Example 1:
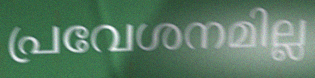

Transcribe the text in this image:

പ്രവേശനമില്ല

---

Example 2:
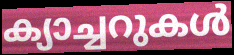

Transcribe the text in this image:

ക്യാച്ചറുകൾ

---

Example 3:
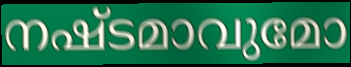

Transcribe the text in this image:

നഷ്ടമാവുമോ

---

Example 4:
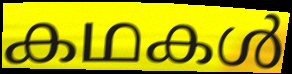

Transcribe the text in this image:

കഥകൾ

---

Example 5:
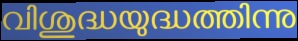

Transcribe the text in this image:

വിശുദ്ധയുദ്ധത്തിന്നു